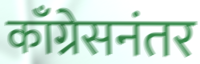
काँग्रेसनंतर